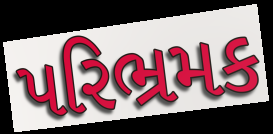
પરિભ્રમક